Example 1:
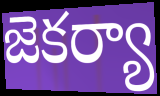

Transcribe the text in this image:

జెకర్యా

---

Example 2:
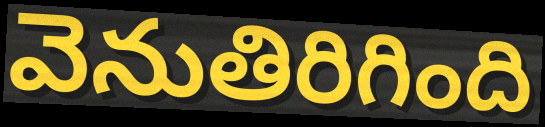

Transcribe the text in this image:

వెనుతిరిగింది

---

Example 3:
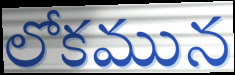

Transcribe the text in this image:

లోకమున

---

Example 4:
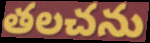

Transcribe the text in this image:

తలచను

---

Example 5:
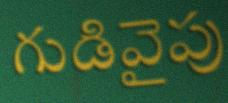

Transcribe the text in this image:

గుడివైపు